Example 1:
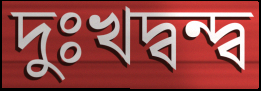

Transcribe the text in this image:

দুঃখদ্বন্দ্ব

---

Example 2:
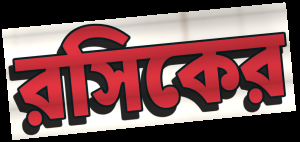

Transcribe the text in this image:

রসিকের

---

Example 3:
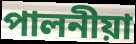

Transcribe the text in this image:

পালনীয়া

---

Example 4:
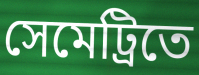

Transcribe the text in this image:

সেমেট্রিতে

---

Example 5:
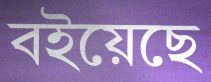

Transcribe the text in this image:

বইয়েছে